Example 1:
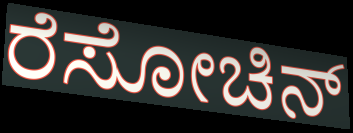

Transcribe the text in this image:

ರೆಸೋಚಿನ್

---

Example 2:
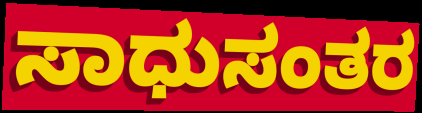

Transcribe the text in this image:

ಸಾಧುಸಂತರ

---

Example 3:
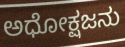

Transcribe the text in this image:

ಅಧೋಕ್ಷಜನು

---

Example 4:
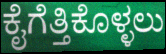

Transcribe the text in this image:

ಕೈಗೆತ್ತಿಕೊಳ್ಳಲು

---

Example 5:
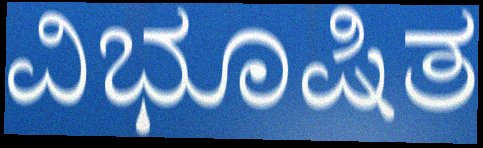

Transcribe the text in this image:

ವಿಭೂಷಿತ